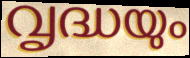
വൃദ്ധയും